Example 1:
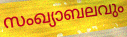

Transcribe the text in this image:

സംഖ്യാബലവും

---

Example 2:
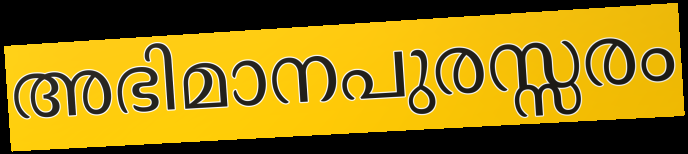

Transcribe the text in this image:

അഭിമാനപുരസ്സരം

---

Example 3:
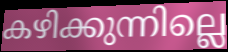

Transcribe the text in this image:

കഴിക്കുന്നില്ലെ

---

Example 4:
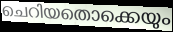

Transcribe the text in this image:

ചെറിയതൊക്കെയും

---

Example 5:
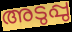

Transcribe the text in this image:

അടുപ്പു